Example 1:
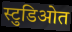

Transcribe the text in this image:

स्टुडिओत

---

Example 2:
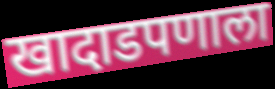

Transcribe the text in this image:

खादाडपणाला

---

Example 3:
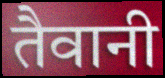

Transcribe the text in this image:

तैवानी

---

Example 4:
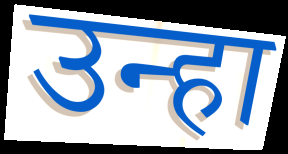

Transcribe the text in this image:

उन्हा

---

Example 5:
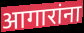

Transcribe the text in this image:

आगारांना